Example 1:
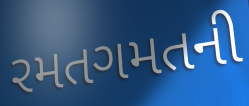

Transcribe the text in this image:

રમતગમતની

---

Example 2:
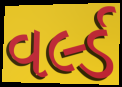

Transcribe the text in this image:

વર્લ્ડ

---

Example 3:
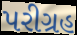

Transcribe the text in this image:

પરીગ્રહ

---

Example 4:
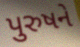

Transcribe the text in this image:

પુરુષને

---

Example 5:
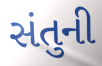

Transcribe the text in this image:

સંતુની